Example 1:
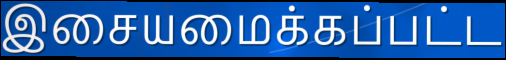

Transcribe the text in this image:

இசையமைக்கப்பட்ட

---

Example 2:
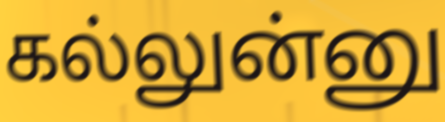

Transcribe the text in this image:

கல்லுன்னு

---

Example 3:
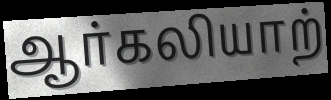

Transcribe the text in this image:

ஆர்கலியாற்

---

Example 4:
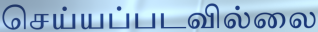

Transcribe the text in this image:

செய்யப்படவில்லை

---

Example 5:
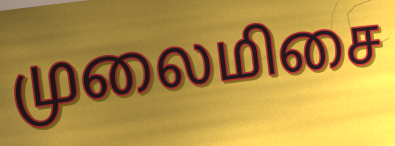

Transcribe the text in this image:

முலைமிசை